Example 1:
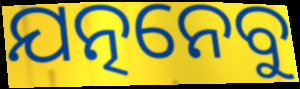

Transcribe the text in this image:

ଯତ୍ନନେବୁ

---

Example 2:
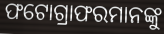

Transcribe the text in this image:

ଫଟୋଗ୍ରାଫରମାନଙ୍କୁ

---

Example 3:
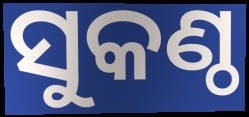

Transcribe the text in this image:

ସୁକଣ୍ଠ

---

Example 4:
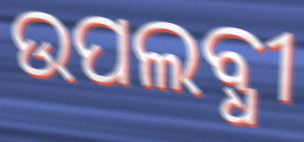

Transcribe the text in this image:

ଉପଲବ୍ଧୀ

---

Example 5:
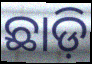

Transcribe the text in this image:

ଛାଡ଼ି